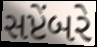
સપ્ટેંબરે